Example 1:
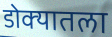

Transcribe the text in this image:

डोक्‍यातला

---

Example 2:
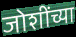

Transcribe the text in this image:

जोशींच्या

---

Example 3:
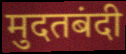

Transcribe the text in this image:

मुदतबंदी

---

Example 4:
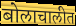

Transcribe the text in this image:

बोलाचालीत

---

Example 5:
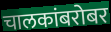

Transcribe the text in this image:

चालकांबरोबर